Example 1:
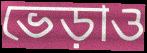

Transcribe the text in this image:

ভেড়াও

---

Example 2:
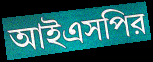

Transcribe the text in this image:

আইএসপির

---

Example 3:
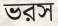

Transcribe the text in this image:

ভরস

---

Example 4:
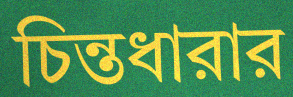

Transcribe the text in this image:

চিন্তধারার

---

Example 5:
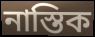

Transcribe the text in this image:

নাস্তিক